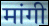
मांगी